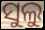
ସୁଲୁ